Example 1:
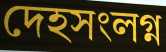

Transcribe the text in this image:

দেহসংলগ্ন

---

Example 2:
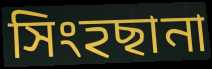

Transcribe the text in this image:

সিংহছানা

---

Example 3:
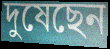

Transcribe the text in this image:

দুষেছেন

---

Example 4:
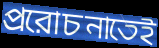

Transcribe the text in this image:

প্ররোচনাতেই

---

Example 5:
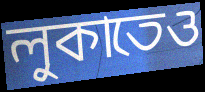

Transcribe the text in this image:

লুকাতেও